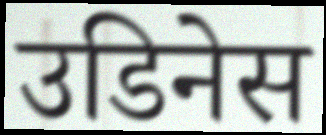
उडिनेस